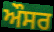
ਔਸਰ